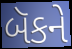
બૅકને